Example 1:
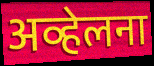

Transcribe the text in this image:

अव्हेलना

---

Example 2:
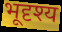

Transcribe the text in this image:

भूदृश्य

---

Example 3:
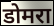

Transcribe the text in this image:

डोमरा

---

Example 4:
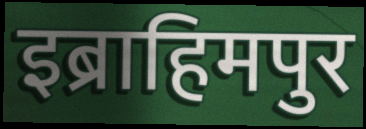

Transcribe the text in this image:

इब्राहिमपुर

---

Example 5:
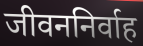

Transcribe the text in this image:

जीवननिर्वाह